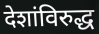
देशांविरुद्ध